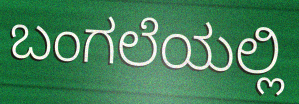
ಬಂಗಲೆಯಲ್ಲಿ